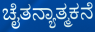
ಚೈತನ್ಯಾತ್ಮಕನೆ